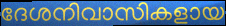
ദേശനിവാസികളായ